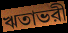
ঋতাভরী